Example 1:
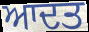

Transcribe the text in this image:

ਆਦਤ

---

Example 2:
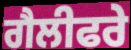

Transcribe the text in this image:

ਗੈਲੀਫਰੇ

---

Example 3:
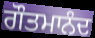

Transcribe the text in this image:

ਗੌਤਮਾਨੰਦ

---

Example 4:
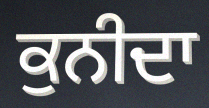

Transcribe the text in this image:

ਕੁਨੀਦਾ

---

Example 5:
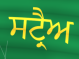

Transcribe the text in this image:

ਸਟ੍ਰੈਅ